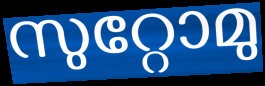
സുറ്റോമു